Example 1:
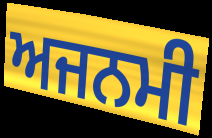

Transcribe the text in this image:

ਅਜਨਮੀ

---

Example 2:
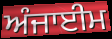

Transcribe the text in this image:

ਅੰਜਾਈਮ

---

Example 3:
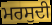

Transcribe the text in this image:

ਮਰਸੁਦੀ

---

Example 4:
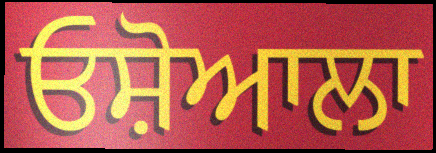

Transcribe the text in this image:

ਓਸ਼ੋਆਲਾ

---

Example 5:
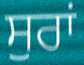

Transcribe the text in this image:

ਸੁਰਾਂ